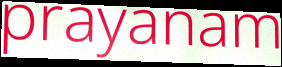
prayanam